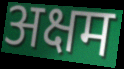
अक्षम